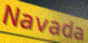
Navada